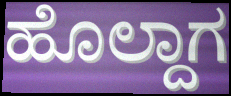
ಹೊಲ್ದಾಗ